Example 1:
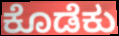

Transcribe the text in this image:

ಕೊಡೆಕು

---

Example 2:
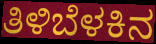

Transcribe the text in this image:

ತಿಳಿಬೆಳಕಿನ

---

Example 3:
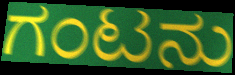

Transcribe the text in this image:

ಗಂಟನು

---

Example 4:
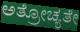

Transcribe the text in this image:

ಅತ್ರೋಚ್ಯತೇ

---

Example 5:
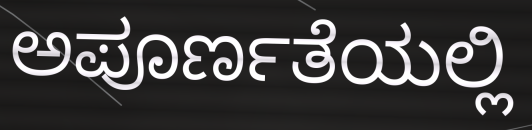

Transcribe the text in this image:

ಅಪೂರ್ಣತೆಯಲ್ಲಿ